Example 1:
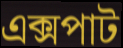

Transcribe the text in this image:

এক্সপাট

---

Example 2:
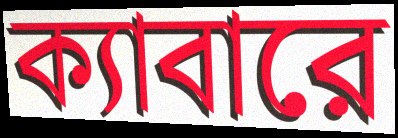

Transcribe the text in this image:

ক্যাবারে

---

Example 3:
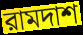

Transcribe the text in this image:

রামদাশ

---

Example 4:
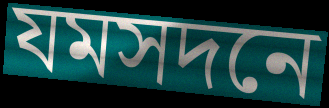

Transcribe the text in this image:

যমসদনে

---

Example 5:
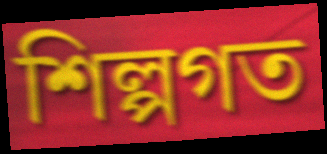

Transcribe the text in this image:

শিল্পগত